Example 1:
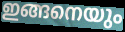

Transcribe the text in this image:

ഇങ്ങനെയും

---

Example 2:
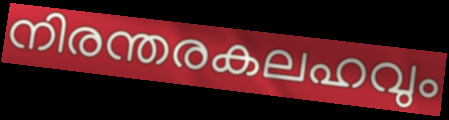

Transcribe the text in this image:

നിരന്തരകലഹവും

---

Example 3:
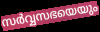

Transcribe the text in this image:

സർവ്വസഭയെയും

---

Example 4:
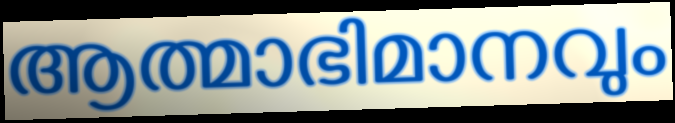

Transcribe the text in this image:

ആത്മാഭിമാനവും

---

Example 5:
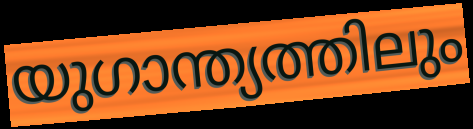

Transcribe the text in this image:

യുഗാന്ത്യത്തിലും